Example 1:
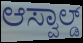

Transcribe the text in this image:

ಆಸ್ವಾಲ್ಡ್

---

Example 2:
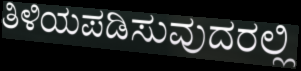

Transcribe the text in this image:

ತಿಳಿಯಪಡಿಸುವುದರಲ್ಲಿ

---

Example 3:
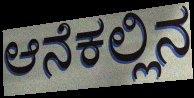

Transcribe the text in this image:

ಆನೆಕಲ್ಲಿನ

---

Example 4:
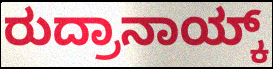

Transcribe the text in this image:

ರುದ್ರಾನಾಯ್ಕ್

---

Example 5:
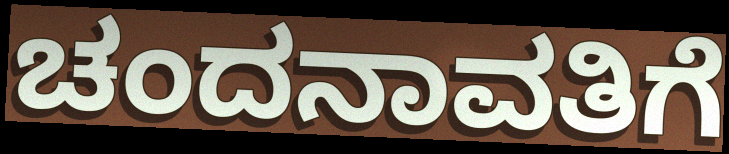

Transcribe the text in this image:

ಚಂದನಾವತಿಗೆ